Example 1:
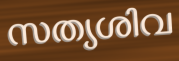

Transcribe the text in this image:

സത്യശിവ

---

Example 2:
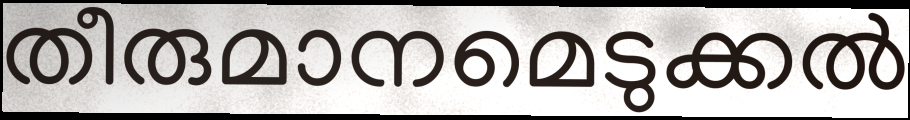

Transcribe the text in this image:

തീരുമാനമെടുക്കൽ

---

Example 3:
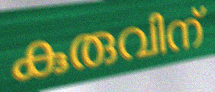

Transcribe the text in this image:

കുരുവിന്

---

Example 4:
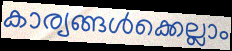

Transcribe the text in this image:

കാര്യങ്ങൾക്കെല്ലാം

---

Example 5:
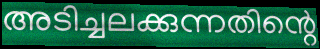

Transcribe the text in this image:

അടിച്ചലക്കുന്നതിന്റെ